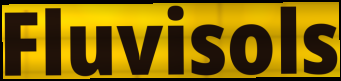
Fluvisols